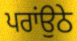
ਪਰਾਂਉਠੇ